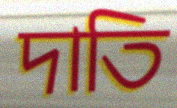
দাতি